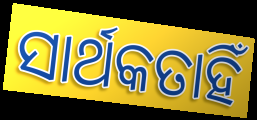
ସାର୍ଥକତାହିଁ